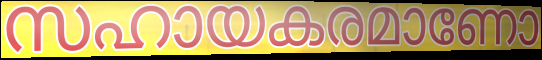
സഹായകരമാണോ